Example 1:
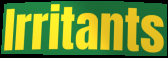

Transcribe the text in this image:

Irritants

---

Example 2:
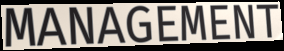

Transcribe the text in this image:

MANAGEMENT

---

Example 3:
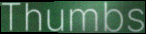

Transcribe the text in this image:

Thumbs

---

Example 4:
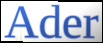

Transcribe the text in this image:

Ader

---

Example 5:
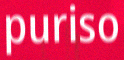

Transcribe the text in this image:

puriso